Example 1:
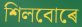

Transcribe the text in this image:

শিলবোৰে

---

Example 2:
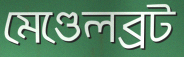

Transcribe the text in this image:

মেণ্ডেলব্ৰট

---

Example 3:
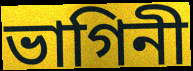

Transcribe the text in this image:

ভাগিনী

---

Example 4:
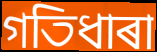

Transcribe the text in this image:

গতিধাৰা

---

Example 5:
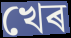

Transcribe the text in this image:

খেৰ